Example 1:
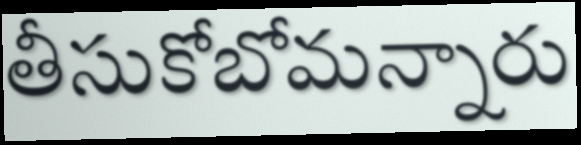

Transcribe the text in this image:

తీసుకోబోమన్నారు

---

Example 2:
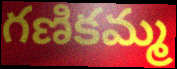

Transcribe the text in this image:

గణికమ్మ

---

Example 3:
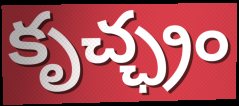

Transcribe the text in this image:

కృచ్ఛ్రం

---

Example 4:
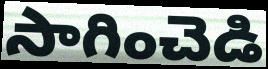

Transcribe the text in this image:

సాగించెడి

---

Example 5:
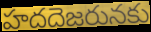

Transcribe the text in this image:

హదదెజరునకు